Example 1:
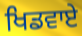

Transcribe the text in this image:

ਖਿਡਵਾਏ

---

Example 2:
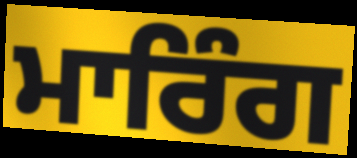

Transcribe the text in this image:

ਮਾਰਿੰਗ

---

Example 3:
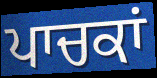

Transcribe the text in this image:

ਪਾਚਕਾਂ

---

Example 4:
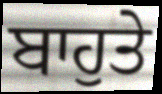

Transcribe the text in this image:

ਬਾਹੁਤੇ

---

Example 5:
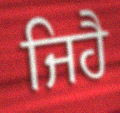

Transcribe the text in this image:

ਜਿਹੈ